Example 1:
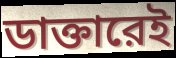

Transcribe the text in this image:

ডাক্তারেই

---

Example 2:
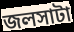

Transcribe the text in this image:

জলসাটা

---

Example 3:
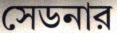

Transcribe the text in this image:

সেডনার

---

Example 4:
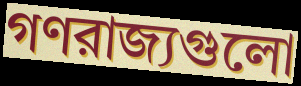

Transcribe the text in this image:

গণরাজ্যগুলো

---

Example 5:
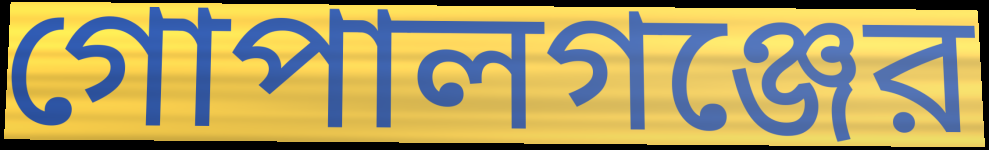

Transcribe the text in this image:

গোপালগঞ্জের